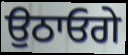
ਉਠਾਓਗੇ